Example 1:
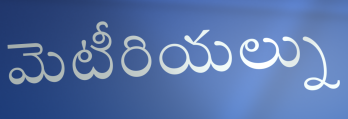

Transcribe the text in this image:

మెటీరియల్ను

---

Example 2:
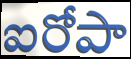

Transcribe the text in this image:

ఐరోపా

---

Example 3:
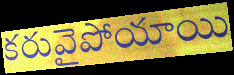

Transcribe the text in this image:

కరువైపోయాయి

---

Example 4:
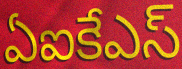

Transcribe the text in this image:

ఏఐకేఎస్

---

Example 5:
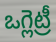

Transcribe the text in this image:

ఒగ్లెట్రీ